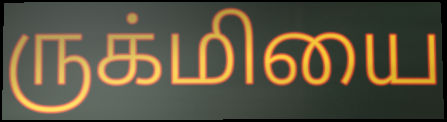
ருக்மியை